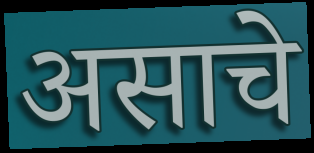
असाचे